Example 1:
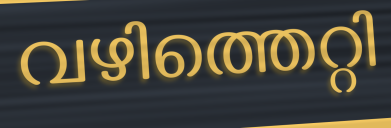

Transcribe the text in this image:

വഴിത്തെറ്റി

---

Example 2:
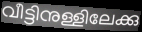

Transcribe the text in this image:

വീട്ടിനുള്ളിലേക്കു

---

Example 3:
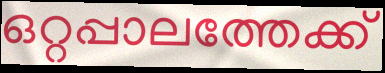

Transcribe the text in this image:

ഒറ്റപ്പാലത്തേക്ക്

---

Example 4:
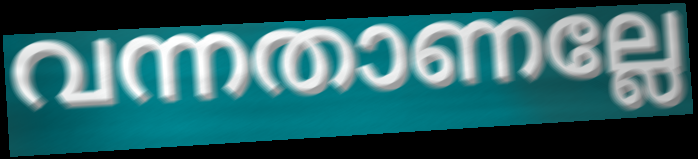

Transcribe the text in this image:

വന്നതാണല്ലേ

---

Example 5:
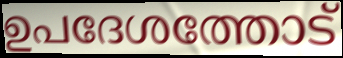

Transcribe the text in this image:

ഉപദേശത്തോട്